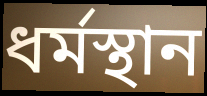
ধর্মস্থান